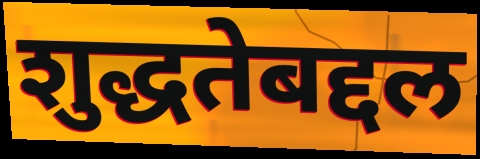
शुद्धतेबद्दल